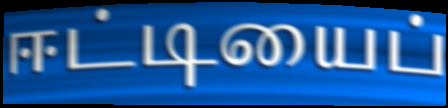
ஈட்டியைப்